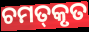
ଚମତ୍‌କୃତ